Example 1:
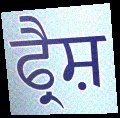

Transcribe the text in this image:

ਫ੍ਰੈਸ਼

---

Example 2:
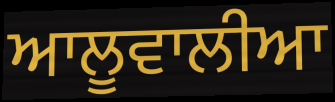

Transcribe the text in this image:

ਆਲੂਵਾਲੀਆ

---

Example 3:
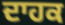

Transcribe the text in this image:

ਦਾਹਕ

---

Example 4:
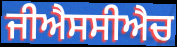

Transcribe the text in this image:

ਜੀਐਸਸੀਐਚ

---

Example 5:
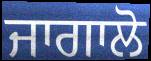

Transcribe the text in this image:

ਜਾਗਾਲੋ